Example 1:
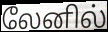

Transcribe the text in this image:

லேனில்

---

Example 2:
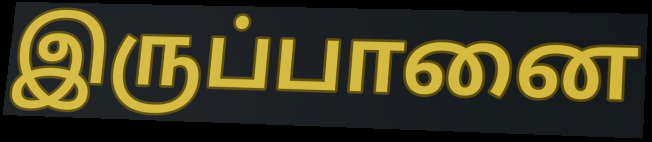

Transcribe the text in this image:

இருப்பானை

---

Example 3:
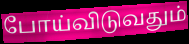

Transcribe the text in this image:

போய்விடுவதும்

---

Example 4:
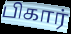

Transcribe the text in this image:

பிகார்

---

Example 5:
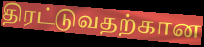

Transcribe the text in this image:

திரட்டுவதற்கான